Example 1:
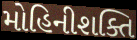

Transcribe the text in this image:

મોહિનીશક્તિ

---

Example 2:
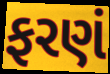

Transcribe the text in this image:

ફરણં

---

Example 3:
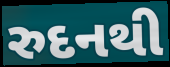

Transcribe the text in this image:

રુદનથી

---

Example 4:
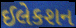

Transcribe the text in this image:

ઈલેકશન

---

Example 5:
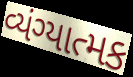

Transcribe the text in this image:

વ્યંગ્યાત્મક